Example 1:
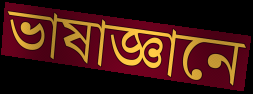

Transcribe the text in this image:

ভাষাজ্ঞানে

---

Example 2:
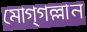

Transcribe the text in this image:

মোগ্‌গল্লান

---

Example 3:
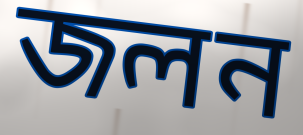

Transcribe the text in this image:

জলন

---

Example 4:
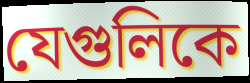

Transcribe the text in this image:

যেগুলিকে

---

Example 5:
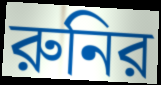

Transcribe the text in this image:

রুনির